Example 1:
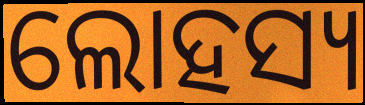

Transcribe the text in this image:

ଲୋହସ୍ୟ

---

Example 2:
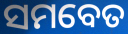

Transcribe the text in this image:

ସମବେତ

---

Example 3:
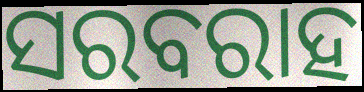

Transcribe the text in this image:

ସରବରାହ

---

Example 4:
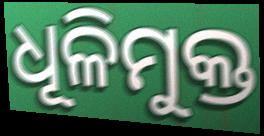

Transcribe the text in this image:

ଧୂଳିମୁକ୍ତ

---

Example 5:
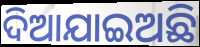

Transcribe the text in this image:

ଦିଆଯାଇଅଛି